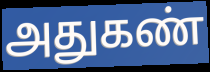
அதுகண்